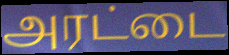
அரட்டை